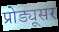
प्रोड्यूसर